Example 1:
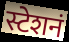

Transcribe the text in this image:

स्टेशनं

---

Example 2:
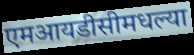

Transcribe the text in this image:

एमआयडीसीमधल्या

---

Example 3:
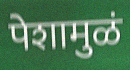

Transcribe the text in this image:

पेशामुळं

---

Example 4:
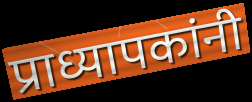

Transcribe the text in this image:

प्राध्यापकांनी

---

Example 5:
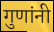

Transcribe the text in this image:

गुणांनी